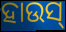
ହାଉସ୍